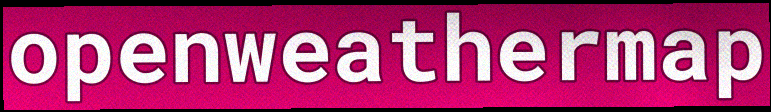
openweathermap